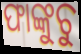
ଫାଙ୍କୁଚୁ